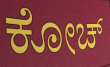
ಕೋಚ್